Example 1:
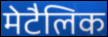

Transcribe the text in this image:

मेटैलिक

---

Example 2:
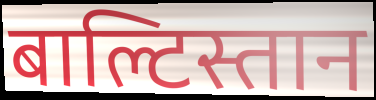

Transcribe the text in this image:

बाल्टिस्तान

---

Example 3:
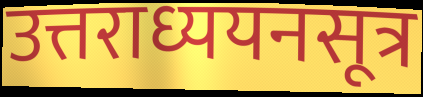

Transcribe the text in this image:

उत्तराध्ययनसूत्र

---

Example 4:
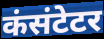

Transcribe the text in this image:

कंसंटेटर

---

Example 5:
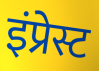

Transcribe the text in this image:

इंप्रेस्ट